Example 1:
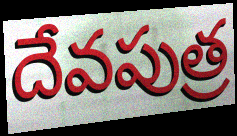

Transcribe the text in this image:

దేవపుత్ర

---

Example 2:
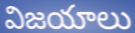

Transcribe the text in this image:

విజయాలు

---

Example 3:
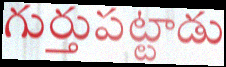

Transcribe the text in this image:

గుర్తుపట్టాడు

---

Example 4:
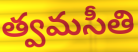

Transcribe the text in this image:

త్వమసీతి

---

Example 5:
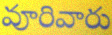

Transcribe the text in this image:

వూరివారు